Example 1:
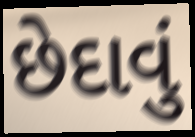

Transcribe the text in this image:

છેદાવું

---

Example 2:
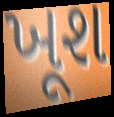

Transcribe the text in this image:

ખૂશ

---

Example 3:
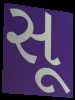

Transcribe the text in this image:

સૂ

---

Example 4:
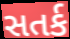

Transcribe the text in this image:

સતર્ક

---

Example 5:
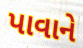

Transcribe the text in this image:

પાવાને